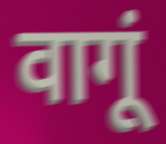
वागूं